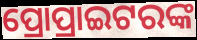
ପ୍ରୋପ୍ରାଇଟରଙ୍କ